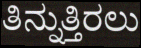
ತಿನ್ನುತ್ತಿರಲು